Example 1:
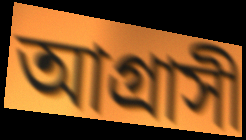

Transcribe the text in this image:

আগ্রাসী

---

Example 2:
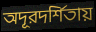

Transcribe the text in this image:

অদূরদর্শিতায়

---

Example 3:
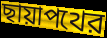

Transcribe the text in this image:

ছায়াপথের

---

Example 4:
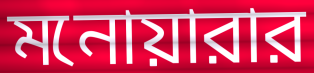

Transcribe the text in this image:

মনোয়ারার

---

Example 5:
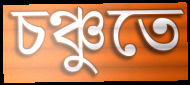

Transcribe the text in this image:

চঞ্চুতে